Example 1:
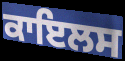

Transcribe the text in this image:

ਕਾਇਲਸ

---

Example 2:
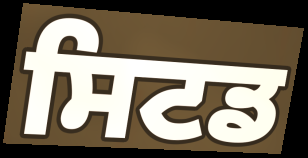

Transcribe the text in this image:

ਸਿਟਡ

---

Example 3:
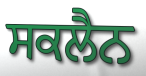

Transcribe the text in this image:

ਸਕਲੈਨ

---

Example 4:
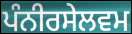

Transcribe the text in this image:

ਪੰਨੀਰਸੇਲਵਮ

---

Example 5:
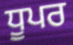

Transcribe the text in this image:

ਧੂਪਰ